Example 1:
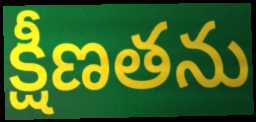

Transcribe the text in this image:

క్షీణతను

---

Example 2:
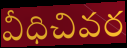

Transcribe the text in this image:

వీధిచివర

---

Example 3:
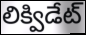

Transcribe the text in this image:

లిక్విడేట్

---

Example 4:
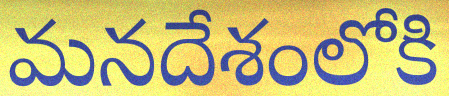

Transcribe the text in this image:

మనదేశంలోకి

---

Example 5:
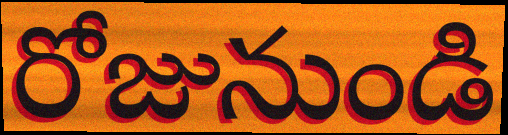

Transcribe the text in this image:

రోజునుండి